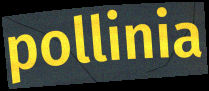
pollinia